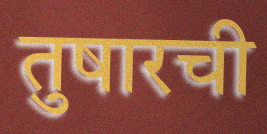
तुषारची